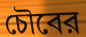
চৌবের